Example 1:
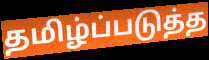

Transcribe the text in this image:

தமிழ்ப்படுத்த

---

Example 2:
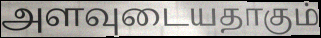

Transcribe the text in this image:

அளவுடையதாகும்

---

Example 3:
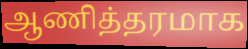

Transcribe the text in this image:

ஆணித்தரமாக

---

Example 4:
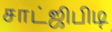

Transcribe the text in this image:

சாட்ஜிபிடி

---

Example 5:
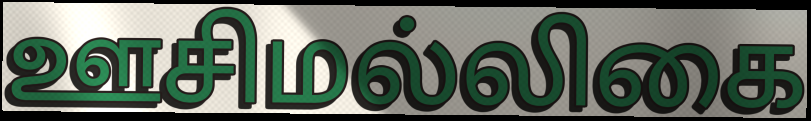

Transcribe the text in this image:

ஊசிமல்லிகை